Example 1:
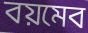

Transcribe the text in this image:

বয়মেব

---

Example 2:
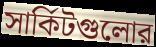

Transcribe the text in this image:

সার্কিটগুলোর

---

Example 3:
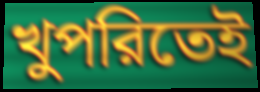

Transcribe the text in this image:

খুপরিতেই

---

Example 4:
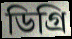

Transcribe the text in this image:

ডিগ্রি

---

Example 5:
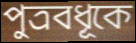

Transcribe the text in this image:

পুত্রবধূকে